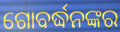
ଗୋବର୍ଦ୍ଧନଙ୍କର